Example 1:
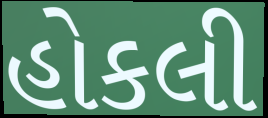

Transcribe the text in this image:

હોકલી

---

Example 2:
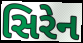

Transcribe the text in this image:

સિરેન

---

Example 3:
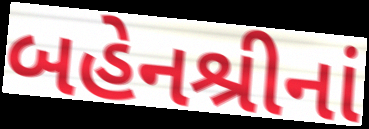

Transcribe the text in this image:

બહેનશ્રીનાં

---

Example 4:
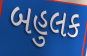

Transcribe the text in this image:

બહુલક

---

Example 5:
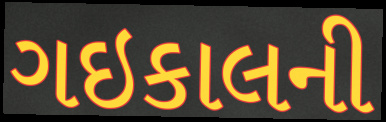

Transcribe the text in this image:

ગઇકાલની